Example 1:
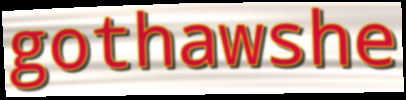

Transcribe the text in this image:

gothawshe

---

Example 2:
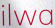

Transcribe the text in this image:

ilwa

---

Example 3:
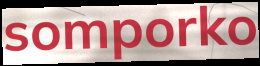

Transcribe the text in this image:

somporko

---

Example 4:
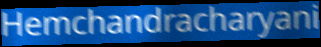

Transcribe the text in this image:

Hemchandracharyani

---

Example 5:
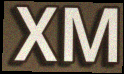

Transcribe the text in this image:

XM